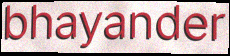
bhayander